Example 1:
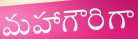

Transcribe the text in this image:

మహాగౌరిగా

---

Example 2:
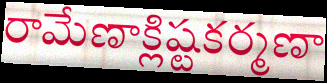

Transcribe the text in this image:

రామేణాక్లిష్టకర్మణా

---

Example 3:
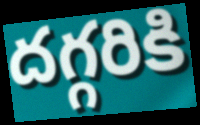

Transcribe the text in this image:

దగ్గరికి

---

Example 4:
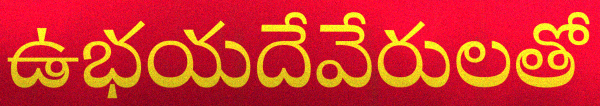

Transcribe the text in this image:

ఉభయదేవేరులతో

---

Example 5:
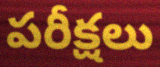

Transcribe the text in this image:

పరీక్షలు